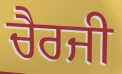
ਚੈਰਜੀ